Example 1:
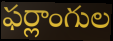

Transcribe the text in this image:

ఫర్లాంగుల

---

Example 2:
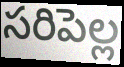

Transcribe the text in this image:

సరిపెల్ల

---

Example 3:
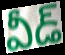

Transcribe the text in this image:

వీడ్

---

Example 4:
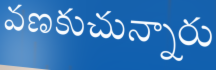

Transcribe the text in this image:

వణకుచున్నారు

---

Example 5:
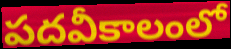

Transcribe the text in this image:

పదవీకాలంలో